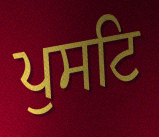
ਪੁਸਟਿ